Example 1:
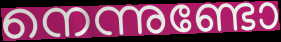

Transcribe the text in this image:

നെന്നുണ്ടോ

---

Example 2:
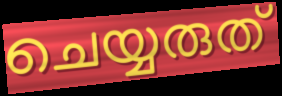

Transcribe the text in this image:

ചെയ്യരുത്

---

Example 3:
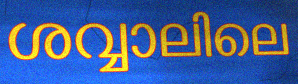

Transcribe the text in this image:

ശവ്വാലിലെ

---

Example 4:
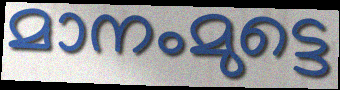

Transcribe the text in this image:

മാനംമുട്ടെ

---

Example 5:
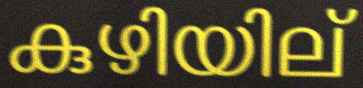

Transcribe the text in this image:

കുഴിയില്